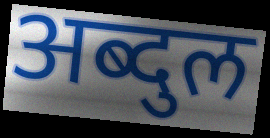
अब्दुल